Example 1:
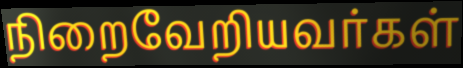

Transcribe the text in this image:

நிறைவேறியவர்கள்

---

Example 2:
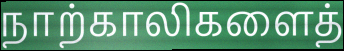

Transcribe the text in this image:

நாற்காலிகளைத்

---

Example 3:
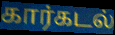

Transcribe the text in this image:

கார்கடல்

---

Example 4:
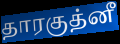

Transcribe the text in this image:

தாரகுத்னீ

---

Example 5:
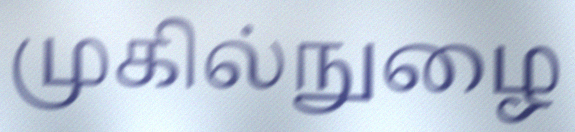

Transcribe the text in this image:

முகில்நுழை